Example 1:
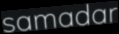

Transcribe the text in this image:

samadar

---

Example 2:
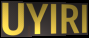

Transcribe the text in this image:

UYIRI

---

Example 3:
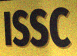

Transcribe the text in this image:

ISSC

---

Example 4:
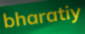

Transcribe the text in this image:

bharatiy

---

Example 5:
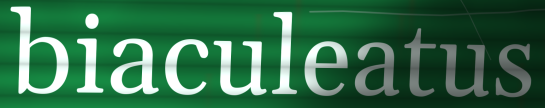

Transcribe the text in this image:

biaculeatus